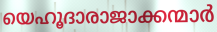
യെഹൂദാരാജാക്കന്മാർ